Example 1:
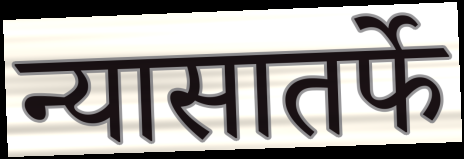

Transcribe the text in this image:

न्यासातर्फे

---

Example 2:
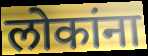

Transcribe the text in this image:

लोकांना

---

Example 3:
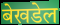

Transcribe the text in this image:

बेखडेल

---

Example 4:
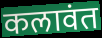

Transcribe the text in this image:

कलावंत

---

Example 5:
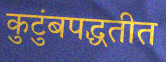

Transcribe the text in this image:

कुटुंबपद्धतीत